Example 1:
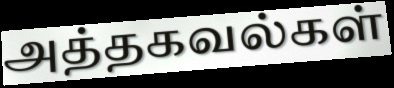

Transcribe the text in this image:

அத்தகவல்கள்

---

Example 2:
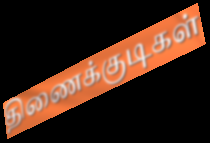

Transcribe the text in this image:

திணைக்குடிகள்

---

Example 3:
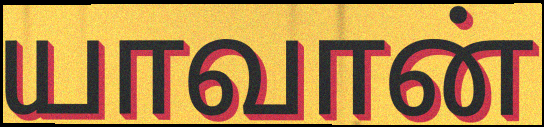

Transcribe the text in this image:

யாவான்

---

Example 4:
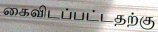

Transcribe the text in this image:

கைவிடப்பட்டதற்கு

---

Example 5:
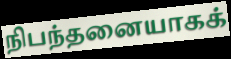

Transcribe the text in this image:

நிபந்தனையாகக்